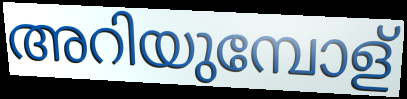
അറിയുമ്പോള്